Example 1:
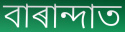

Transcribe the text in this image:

বাৰান্দাত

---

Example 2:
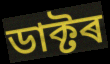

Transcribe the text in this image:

ডাক্টৰ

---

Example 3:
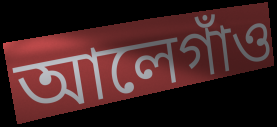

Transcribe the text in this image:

আলেগাঁও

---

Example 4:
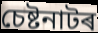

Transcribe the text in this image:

চেষ্টনাটৰ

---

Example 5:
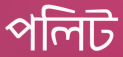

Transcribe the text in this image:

পলিট